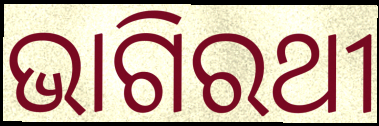
ଭାଗିରଥୀ